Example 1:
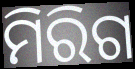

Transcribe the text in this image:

ମିରିଗ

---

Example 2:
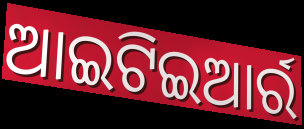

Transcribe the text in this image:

ଆଇଟିଇଆର୍ର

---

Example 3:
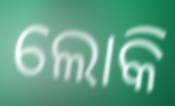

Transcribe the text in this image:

ଲୋକି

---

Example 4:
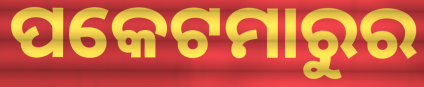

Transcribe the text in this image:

ପକେଟମାରୁର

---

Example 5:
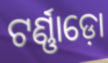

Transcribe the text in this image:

ଟର୍ଣ୍ଣାଡ଼ୋ